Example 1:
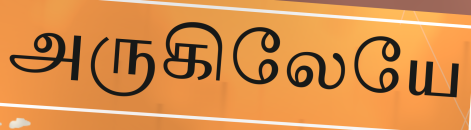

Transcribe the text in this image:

அருகிலேயே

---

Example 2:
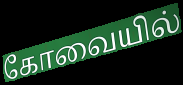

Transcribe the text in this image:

கோவையில்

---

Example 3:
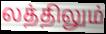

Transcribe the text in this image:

லத்திலும்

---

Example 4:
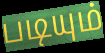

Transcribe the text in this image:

படியும்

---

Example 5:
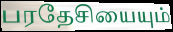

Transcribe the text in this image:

பரதேசியையும்